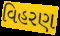
વિહરણ